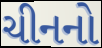
ચીનનો